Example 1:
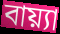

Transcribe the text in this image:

বায়্যা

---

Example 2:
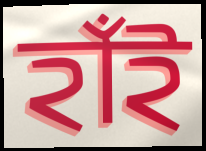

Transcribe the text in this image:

হাঁই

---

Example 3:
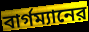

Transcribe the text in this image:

বার্গম্যানের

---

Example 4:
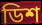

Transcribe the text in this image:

ডিশ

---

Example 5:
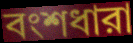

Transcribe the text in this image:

বংশধারা